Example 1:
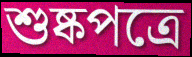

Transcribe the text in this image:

শুষ্কপত্রে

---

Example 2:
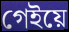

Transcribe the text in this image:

গেইয়ে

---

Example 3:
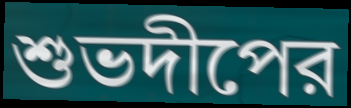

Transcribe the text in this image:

শুভদীপের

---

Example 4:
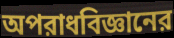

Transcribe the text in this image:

অপরাধবিজ্ঞানের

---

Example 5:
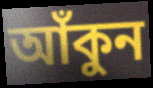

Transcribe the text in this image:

আঁকুন